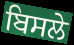
ਬਿਸਲੇ